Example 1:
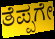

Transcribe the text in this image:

ತೆಪ್ಪಗೇ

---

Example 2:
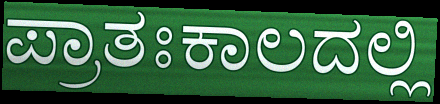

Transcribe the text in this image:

ಪ್ರಾತಃಕಾಲದಲ್ಲಿ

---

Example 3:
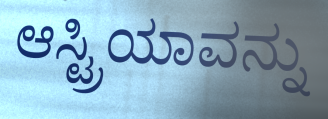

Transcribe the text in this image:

ಆಸ್ಟ್ರಿಯಾವನ್ನು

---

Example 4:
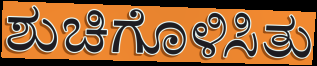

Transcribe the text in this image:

ಶುಚಿಗೊಳಿಸಿತು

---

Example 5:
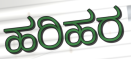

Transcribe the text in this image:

ಹರಿಹರ